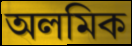
অলমিক